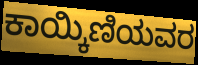
ಕಾಯ್ಕಿಣಿಯವರ